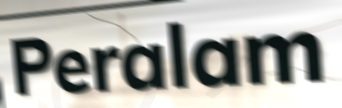
Peralam